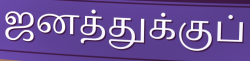
ஜனத்துக்குப்